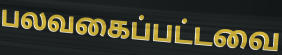
பலவகைப்பட்டவை